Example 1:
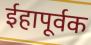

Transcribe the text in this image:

ईहापूर्वक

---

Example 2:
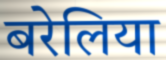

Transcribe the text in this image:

बरेलिया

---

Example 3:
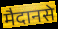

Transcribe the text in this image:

मैदानसे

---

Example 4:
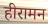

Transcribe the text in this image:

हीरामन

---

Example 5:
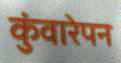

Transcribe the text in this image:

कुंवारेपन